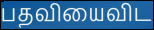
பதவியைவிட